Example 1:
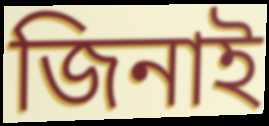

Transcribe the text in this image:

জিনাই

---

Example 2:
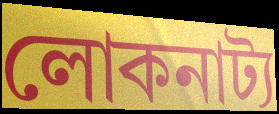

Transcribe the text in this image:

লোকনাট্য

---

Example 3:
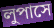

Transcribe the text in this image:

লুপাসে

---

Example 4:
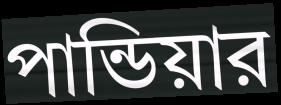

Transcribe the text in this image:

পান্ডিয়ার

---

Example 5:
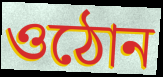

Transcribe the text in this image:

ওঠোন